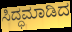
ಸಿದ್ಧಮಾಡಿದ